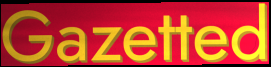
Gazetted